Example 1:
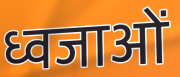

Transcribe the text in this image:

ध्वजाओं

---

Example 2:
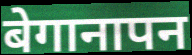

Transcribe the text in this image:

बेगानापन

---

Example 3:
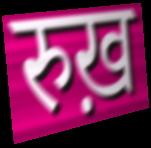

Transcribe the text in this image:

रुख़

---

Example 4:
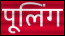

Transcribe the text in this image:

पूलिंग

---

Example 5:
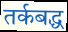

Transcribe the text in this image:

तर्कबद्ध